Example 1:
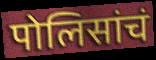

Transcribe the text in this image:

पोलिसांचं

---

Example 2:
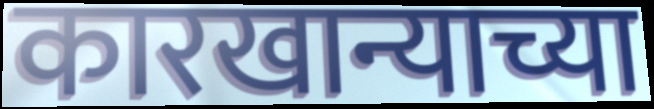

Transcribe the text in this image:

कारखान्याच्या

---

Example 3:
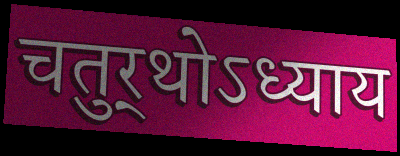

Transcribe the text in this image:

चतुर्थोऽध्याय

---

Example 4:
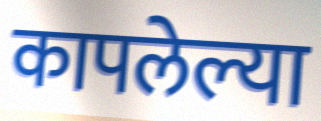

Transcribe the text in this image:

कापलेल्या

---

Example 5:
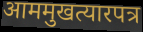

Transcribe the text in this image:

आममुखत्यारपत्र